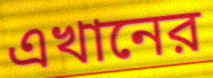
এখানের